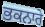
ਭਕਨਾਰੇ